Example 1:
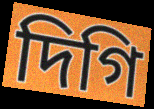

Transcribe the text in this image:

দিগি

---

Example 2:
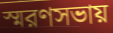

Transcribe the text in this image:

স্মরণসভায়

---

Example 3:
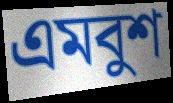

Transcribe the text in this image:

এমবুশ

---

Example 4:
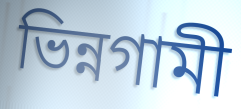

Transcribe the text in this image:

ভিন্নগামী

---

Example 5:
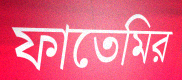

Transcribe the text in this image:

ফাতেমির